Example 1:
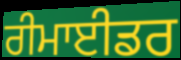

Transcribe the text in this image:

ਰੀਮਾਈਡਰ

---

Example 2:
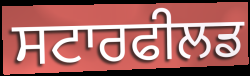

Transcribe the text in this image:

ਸਟਾਰਫੀਲਡ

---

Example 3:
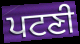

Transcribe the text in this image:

ਪਟਣੀ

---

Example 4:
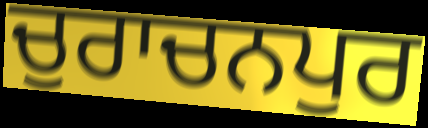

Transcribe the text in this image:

ਚੁਰਾਚਨਪੁਰ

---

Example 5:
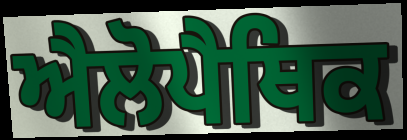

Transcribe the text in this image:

ਐਲੋਪੈਥਿਕ